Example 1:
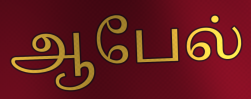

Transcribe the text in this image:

ஆபேல்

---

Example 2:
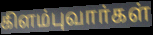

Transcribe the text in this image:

கிளம்புவார்கள்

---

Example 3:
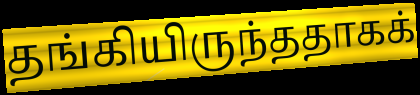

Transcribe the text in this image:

தங்கியிருந்ததாகக்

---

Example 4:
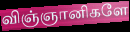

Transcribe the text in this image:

விஞ்ஞானிகளே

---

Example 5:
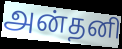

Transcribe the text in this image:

அன்தனி